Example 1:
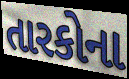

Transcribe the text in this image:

તારકોના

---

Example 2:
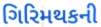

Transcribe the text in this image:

ગિરિમથકની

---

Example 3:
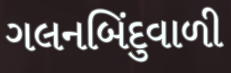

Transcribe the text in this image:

ગલનબિંદુવાળી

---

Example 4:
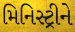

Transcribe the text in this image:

મિનિસ્ટ્રીને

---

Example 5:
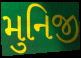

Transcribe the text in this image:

મુનિજી